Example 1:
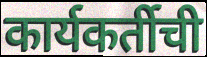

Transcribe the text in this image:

कार्यकर्तीची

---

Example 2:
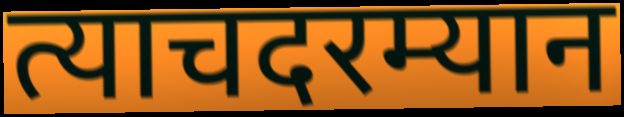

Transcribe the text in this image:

त्याचदरम्यान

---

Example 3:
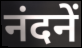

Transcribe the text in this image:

नंदनें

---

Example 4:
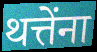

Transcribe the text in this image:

थत्तेंना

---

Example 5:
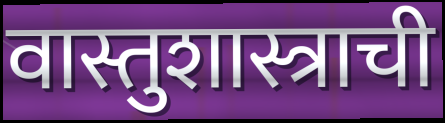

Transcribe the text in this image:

वास्तुशास्त्राची